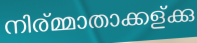
നിര്മ്മാതാക്കള്ക്കു